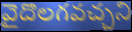
వైదొలగవచ్చని